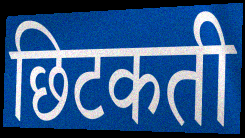
छिटकती